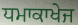
ਧਮਾਕਾਖੇਜ